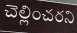
చెల్లించరని